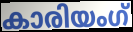
കാരിയംഗ്